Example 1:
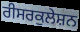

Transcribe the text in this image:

ਰੀਸਰਕੁਲੇਸ਼ਨ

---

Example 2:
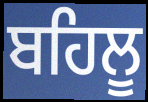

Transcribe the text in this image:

ਬਹਿਲੂ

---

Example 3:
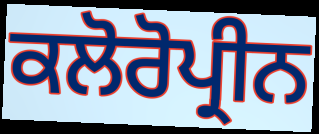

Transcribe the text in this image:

ਕਲੋਰੋਪ੍ਰੀਨ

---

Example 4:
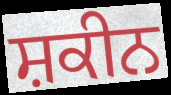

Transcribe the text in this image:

ਸ਼ਕੀਨ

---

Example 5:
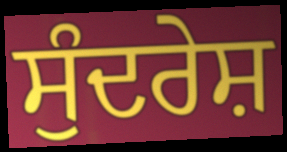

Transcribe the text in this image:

ਸੁੰਦਰੇਸ਼